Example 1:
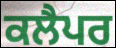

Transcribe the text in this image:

ਕਲੈਪਰ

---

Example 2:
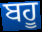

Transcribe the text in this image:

ਬਹੂ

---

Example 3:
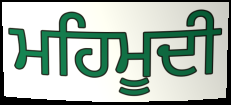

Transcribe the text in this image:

ਮਹਿਮੂਦੀ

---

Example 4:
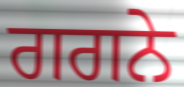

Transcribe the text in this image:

ਗਗਨੇ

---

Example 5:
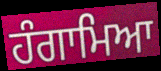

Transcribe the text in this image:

ਹੰਗਾਮਿਆ